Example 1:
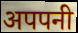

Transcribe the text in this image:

अपपनी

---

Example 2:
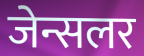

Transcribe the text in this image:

जेन्सलर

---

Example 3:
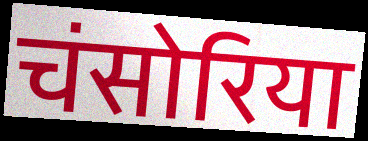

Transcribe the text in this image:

चंसोरिया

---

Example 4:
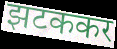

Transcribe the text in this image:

झटककर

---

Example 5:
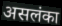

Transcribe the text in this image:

असलंका